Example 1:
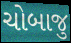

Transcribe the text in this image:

ચોબાજુ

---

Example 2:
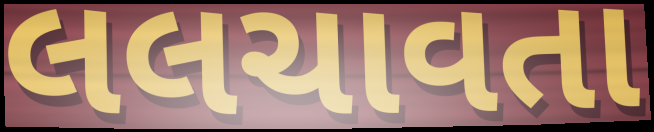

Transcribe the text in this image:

લલચાવતા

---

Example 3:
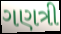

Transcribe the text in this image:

ગણત્રી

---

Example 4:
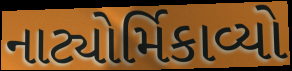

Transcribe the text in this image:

નાટ્યોર્મિકાવ્યો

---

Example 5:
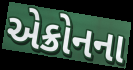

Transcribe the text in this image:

એક્રોનના